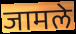
जामले